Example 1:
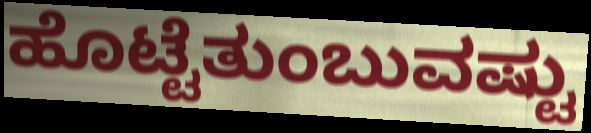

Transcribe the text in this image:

ಹೊಟ್ಟೆತುಂಬುವಷ್ಟು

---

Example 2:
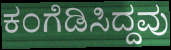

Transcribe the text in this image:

ಕಂಗೆಡಿಸಿದ್ದವು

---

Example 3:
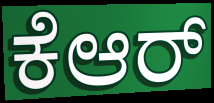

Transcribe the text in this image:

ಕೆಆರ್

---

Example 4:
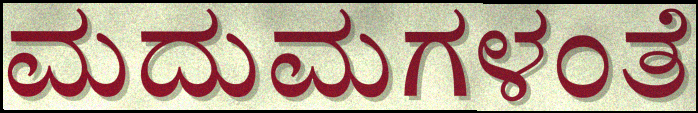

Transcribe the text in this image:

ಮದುಮಗಳಂತೆ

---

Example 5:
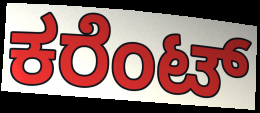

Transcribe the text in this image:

ಕರೆಂಟ್